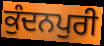
ਕੁੰਦਨਪੁਰੀ